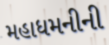
મહાધમનીની